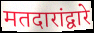
मतदारांद्वारे